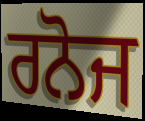
ਰਨੋਜ